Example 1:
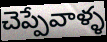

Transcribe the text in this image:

చెప్పేవాళ్ళ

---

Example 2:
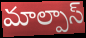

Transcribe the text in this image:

మాల్పాస్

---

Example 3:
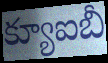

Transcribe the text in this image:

క్యూఐబీ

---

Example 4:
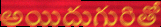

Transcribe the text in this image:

అయిదుగురితో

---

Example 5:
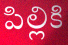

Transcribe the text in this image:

పిల్లికి